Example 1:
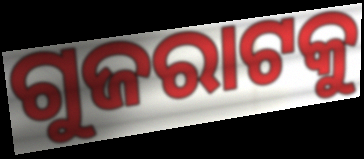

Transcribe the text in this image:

ଗୁଜରାଟକୁ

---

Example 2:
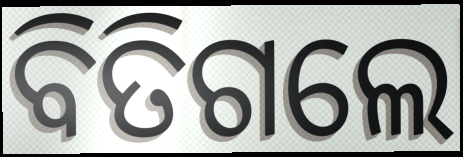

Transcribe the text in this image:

ବିତିଗଲେ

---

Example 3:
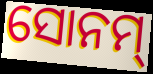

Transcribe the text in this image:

ସୋନମ୍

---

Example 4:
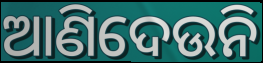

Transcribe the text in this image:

ଆଣିଦେଉନି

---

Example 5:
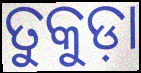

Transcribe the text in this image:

ତୁକୁଡ଼ା